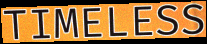
TIMELESS